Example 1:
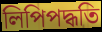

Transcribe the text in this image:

লিপিপদ্ধতি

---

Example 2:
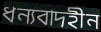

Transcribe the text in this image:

ধন্যবাদহীন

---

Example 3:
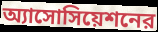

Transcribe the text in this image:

অ্যাসোসিয়েশনের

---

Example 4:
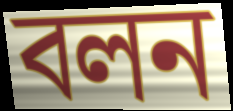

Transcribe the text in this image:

বলন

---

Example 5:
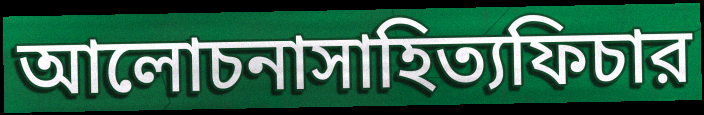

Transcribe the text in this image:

আলোচনাসাহিত্যফিচার